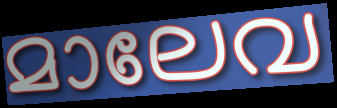
മാലേവ